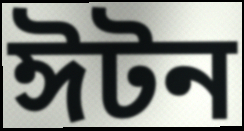
ঈটন